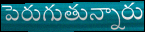
పెరుగుతున్నారు